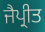
ਜੈਪ੍ਰੀਤ